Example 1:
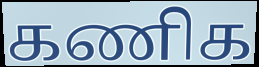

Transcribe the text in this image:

கணிக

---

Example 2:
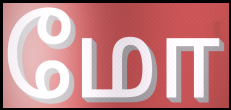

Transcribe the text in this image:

மோ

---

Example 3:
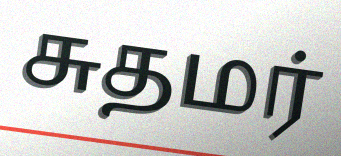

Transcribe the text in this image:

சுதமர்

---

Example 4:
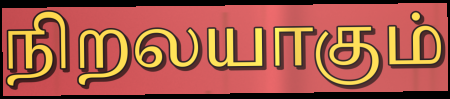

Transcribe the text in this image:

நிறலயாகும்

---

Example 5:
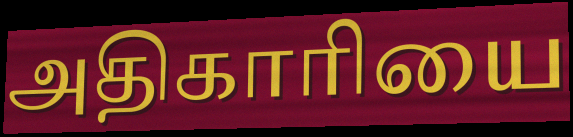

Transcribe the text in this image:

அதிகாரியை